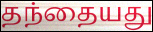
தந்தையது